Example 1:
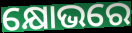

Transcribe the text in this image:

କ୍ଷୋଭରେ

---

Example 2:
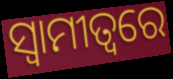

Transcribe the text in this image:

ସ୍ୱାମୀତ୍ୱରେ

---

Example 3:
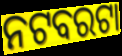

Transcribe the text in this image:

ନଟବରଟା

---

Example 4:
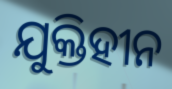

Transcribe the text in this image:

ଯୁକ୍ତିହୀନ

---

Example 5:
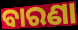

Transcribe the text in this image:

ବାରଣା